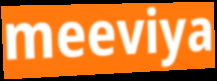
meeviya